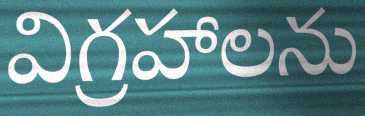
విగ్రహాలను